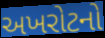
અખરોટનો